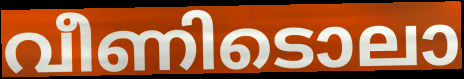
വീണിടൊലാ